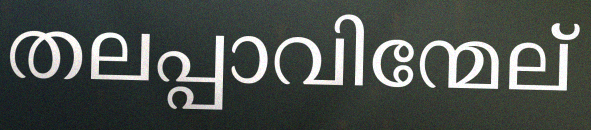
തലപ്പാവിന്മേല്